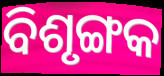
ବିଶୃଙ୍ଗକ